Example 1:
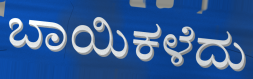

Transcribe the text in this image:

ಬಾಯಿಕಳೆದು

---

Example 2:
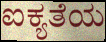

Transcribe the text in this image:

ಐಕ್ಯತೆಯ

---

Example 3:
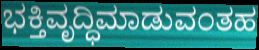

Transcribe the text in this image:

ಭಕ್ತಿವೃದ್ಧಿಮಾಡುವಂತಹ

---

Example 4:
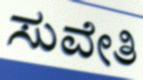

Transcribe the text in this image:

ಸುವೇತಿ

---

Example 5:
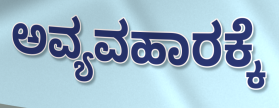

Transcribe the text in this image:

ಅವ್ಯವಹಾರಕ್ಕೆ